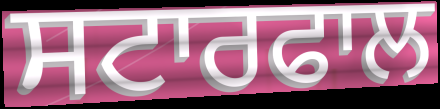
ਸਟਾਰਫਾਲ